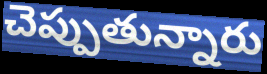
చెప్పుతున్నారు